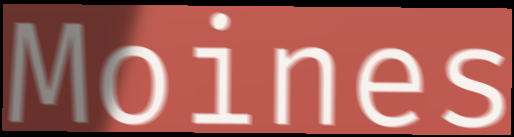
Moines